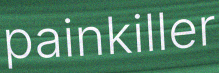
painkiller